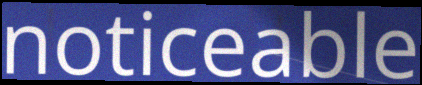
noticeable